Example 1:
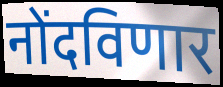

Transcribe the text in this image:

नोंदविणार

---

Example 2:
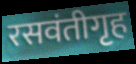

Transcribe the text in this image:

रसवंतीगृह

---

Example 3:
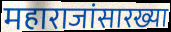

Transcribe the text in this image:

महाराजांसारख्या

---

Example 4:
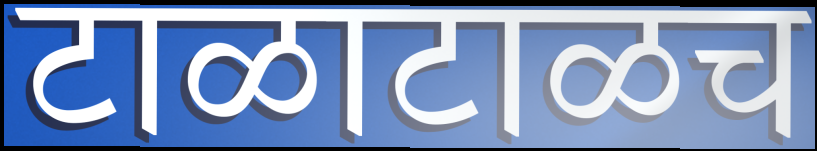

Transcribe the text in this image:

टाळाटाळच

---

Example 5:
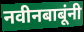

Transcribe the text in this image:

नवीनबाबूंनी